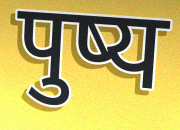
पुष्य